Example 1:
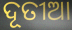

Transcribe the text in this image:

ଦୂତୀଆ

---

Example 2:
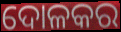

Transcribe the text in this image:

ଦୋଳକର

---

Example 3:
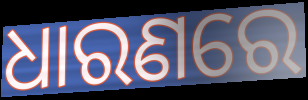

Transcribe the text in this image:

ଧାରଣରେ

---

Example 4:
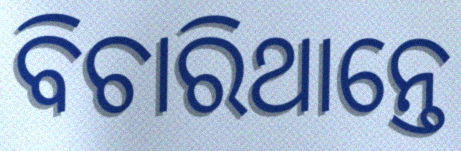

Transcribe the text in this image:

ବିଚାରିଥାନ୍ତେ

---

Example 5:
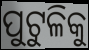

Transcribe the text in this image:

ପୁଟୁଳିକୁ